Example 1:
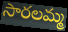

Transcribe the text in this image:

సారలమ్మ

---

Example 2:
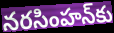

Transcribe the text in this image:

నరసింహన్‌కు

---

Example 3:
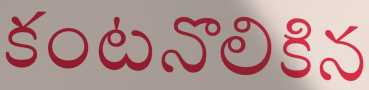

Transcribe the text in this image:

కంటనొలికిన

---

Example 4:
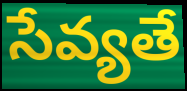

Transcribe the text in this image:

సేవ్యతే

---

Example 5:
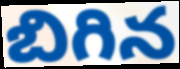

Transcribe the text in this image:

బిగిన